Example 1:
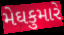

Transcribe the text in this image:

મેઘકુમારે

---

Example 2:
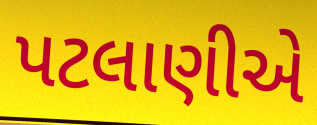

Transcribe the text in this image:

પટલાણીએ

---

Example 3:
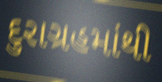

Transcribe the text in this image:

દુરાગ્રહમાંથી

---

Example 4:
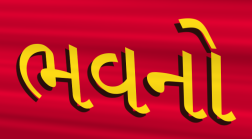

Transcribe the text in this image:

ભવનો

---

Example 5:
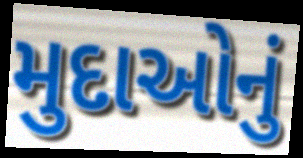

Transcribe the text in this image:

મુદાઓનું